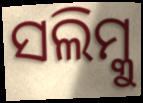
ସଲିମ୍କୁ